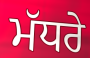
ਮੱਧਰੇ